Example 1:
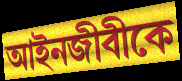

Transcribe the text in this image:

আইনজীবীকে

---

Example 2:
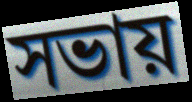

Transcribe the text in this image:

সভায়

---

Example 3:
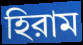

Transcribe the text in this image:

হিরাম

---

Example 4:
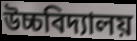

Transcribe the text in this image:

উচ্চবিদ্যালয়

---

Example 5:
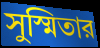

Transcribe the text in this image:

সুস্মিতার